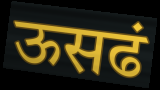
ऊसढं